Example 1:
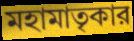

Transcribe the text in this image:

মহামাতৃকার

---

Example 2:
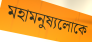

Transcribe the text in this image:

মহামনুষ্যলোকে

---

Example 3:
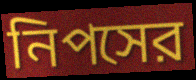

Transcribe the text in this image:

নিপসের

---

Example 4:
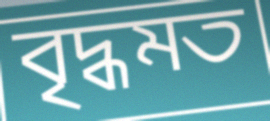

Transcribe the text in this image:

বৃদ্ধমত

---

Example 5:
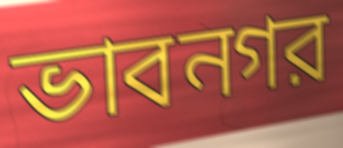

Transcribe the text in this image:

ভাবনগর